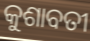
କୁଶାବତୀ